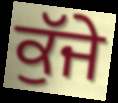
ਕੁੱਜੇ